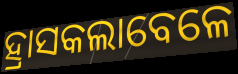
ହ୍ରାସକଲାବେଳେ